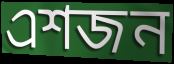
এশজন